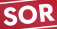
SOR